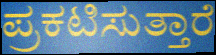
ಪ್ರಕಟಿಸುತ್ತಾರೆ